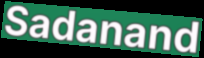
Sadanand